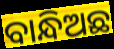
ବାନ୍ଧିଅଛ